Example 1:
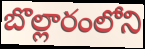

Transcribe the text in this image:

బొల్లారంలోని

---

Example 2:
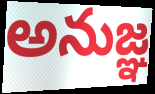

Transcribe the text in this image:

అనుజ్ఞ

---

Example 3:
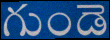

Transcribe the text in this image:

గుండె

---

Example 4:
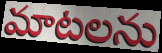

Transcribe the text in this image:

మాటలను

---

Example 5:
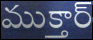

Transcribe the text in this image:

ముక్తార్